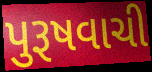
પુરૂષવાચી